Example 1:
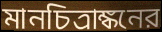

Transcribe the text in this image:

মানচিত্রাঙ্কনের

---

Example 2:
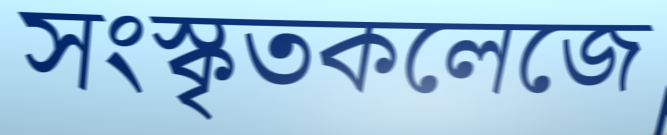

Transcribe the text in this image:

সংস্কৃতকলেজে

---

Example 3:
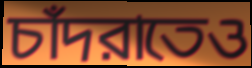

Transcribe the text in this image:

চাঁদরাতেও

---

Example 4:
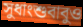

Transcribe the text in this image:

সুধাংশুবাবুও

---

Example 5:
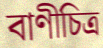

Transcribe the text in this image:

বাণীচিত্র